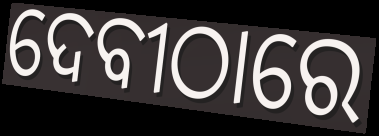
ଦେବୀଠାରେ